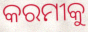
କରମୀକୁ